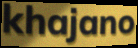
khajano